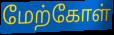
மேற்கோள்